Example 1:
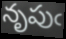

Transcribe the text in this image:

నృపుఁ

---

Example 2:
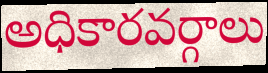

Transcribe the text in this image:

అధికారవర్గాలు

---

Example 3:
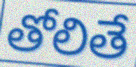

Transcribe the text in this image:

తోలితే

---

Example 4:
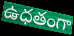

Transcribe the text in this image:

ఉధతంగా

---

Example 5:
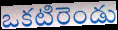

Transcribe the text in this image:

ఒకటిరెండు